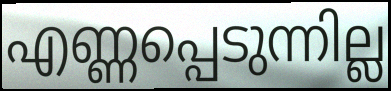
എണ്ണപ്പെടുന്നില്ല